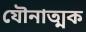
যৌনাত্মক